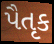
પૈતૃક